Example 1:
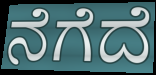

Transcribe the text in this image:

ನೆಗೆದೆ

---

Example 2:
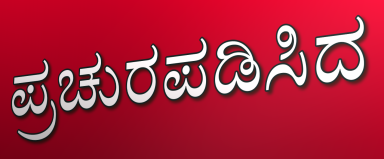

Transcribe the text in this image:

ಪ್ರಚುರಪಡಿಸಿದ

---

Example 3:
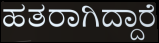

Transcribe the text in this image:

ಹತರಾಗಿದ್ದಾರೆ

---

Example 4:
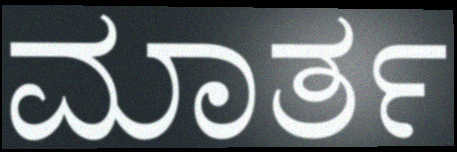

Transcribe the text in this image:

ಮಾರ್ತ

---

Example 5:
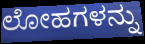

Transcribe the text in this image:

ಲೋಹಗಳನ್ನು